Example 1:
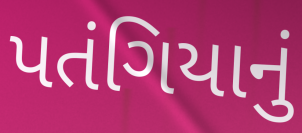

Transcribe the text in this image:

પતંગિયાનું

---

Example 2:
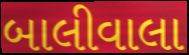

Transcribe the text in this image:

બાલીવાલા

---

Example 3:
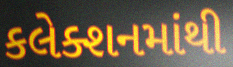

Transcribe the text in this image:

કલેક્શનમાંથી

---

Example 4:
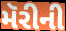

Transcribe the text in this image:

મૅરીની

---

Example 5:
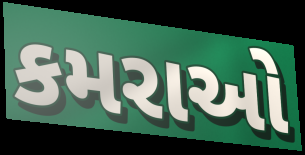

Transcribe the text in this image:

કમરાઓ